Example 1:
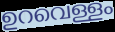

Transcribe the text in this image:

ഉറവെള്ളം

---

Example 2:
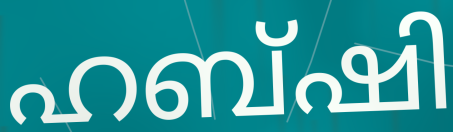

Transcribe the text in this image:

ഹബ്ഷി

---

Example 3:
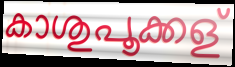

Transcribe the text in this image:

കാശുപൂക്കള്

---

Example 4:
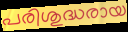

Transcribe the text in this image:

പരിശുദ്ധരായ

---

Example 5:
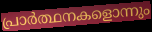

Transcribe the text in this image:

പ്രാർത്ഥനകളൊന്നും